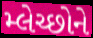
મ્લેચ્છોને